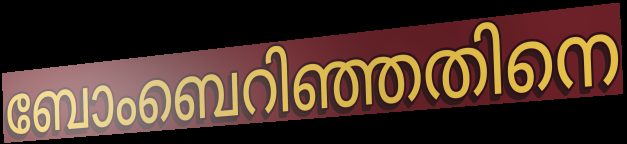
ബോംബെറിഞ്ഞതിനെ